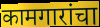
कामगारांचा